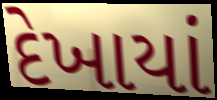
દેખાયાં